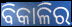
ବିକାଳିର